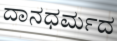
ದಾನಧರ್ಮದ